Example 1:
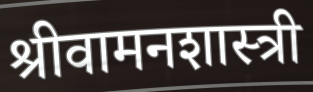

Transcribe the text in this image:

श्रीवामनशास्त्री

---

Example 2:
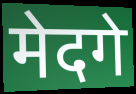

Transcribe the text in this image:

मेदगे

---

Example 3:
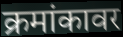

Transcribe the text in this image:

क्रमांकावर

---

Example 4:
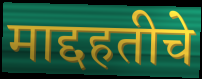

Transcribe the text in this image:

माद्दहतीचे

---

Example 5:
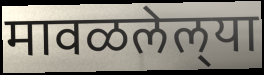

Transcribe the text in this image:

मावळलेल्या